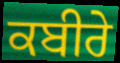
ਕਬੀਰੇ